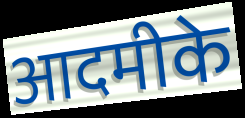
आदमीके